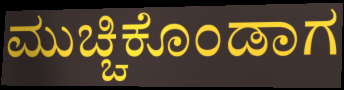
ಮುಚ್ಚಿಕೊಂಡಾಗ